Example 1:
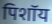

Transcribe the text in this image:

पिशॉय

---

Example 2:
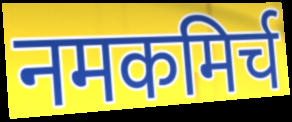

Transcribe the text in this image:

नमकमिर्च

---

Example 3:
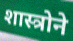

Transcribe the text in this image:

शास्त्रोने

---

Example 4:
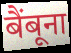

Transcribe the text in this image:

बैंबूना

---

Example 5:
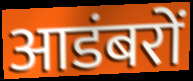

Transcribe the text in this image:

आडंबरों